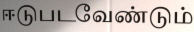
ஈடுபடவேண்டும்